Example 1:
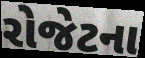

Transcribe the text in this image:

રોજેટના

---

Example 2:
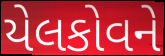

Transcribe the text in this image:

યેલકોવને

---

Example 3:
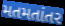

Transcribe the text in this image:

મતમતાંતર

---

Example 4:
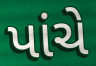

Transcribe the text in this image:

પાંચે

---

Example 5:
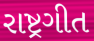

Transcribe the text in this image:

રાષ્ટ્રગીત